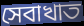
সেবাখাত